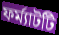
ফর্ম্যাটটি